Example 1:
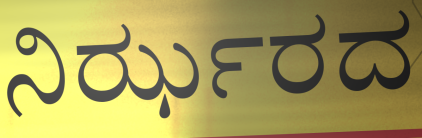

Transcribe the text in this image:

ನಿರ್ಝರದ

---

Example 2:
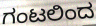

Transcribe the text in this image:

ಗಂಟಲಿಂದ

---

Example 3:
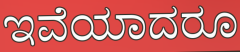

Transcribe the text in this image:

ಇವೆಯಾದರೂ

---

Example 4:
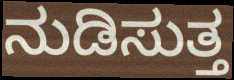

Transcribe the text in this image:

ನುಡಿಸುತ್ತ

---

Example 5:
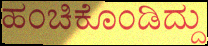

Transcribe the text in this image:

ಹಂಚಿಕೊಂಡಿದ್ದು